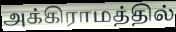
அக்கிராமத்தில்